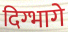
दिग्भागे